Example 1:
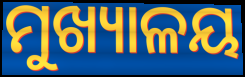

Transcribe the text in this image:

ମୁଖ୍ୟାଳୟ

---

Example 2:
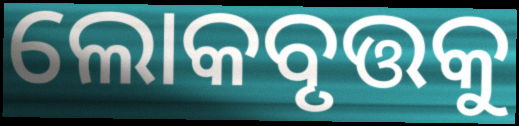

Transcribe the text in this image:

ଲୋକବୃତ୍ତକୁ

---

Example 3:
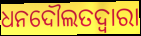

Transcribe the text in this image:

ଧନଦୌଲତଦ୍ଵାରା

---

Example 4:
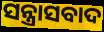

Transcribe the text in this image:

ସନ୍ତ୍ରାସବାଦ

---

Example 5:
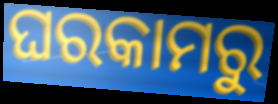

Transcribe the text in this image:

ଘରକାମରୁ